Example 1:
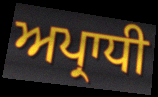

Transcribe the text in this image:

ਅਪ੍ਰਾਧੀ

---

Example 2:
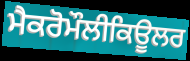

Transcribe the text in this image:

ਮੈਕਰੋਮੌਲੀਕਿਊਲਰ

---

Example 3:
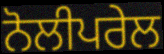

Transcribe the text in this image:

ਨੋਲੀਪਰੇਲ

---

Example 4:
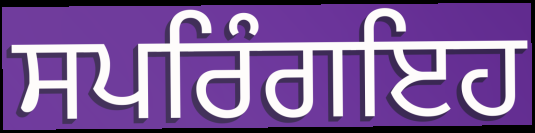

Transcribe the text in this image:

ਸਪਰਿੰਗਇਹ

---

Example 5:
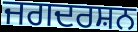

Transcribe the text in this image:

ਜਗਦਰਸ਼ਨ